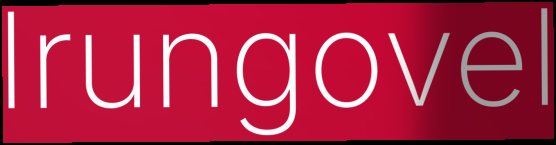
Irungovel